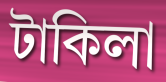
টাকিলা